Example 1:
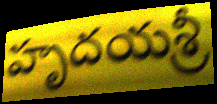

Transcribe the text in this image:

హృదయశ్రీ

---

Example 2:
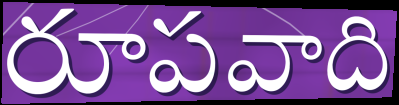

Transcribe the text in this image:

రూపవాది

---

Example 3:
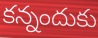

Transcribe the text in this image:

కన్నందుకు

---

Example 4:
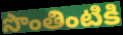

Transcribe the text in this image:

సొంతింటికి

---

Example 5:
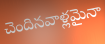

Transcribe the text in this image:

చెందినవాళ్లమైనా